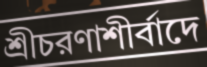
শ্রীচরণাশীর্বাদে